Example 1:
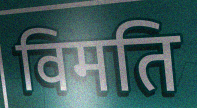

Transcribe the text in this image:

विमति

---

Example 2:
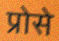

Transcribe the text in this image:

प्रोसे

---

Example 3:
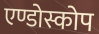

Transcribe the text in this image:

एण्डोस्कोप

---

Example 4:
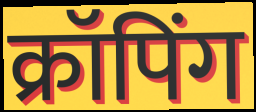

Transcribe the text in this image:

क्रॉपिंग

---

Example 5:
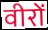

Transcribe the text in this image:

वीरों